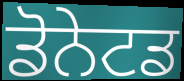
ਡੋਨੇਟਡ